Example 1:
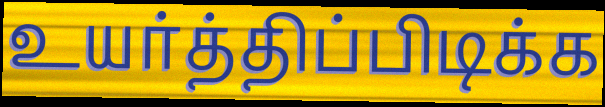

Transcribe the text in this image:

உயர்த்திப்பிடிக்க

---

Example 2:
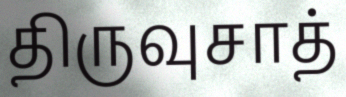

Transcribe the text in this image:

திருவுசாத்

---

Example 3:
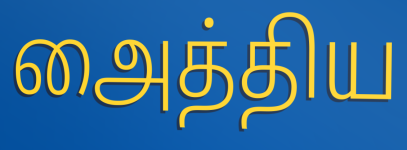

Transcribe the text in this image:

அைத்திய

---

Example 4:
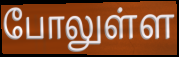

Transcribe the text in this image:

போலுள்ள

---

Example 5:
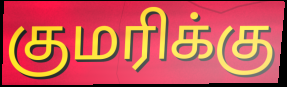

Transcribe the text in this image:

குமரிக்கு